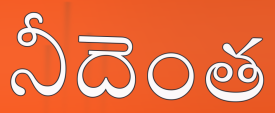
నీదెంత